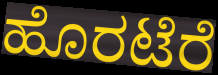
ಹೊರಟೆರೆ